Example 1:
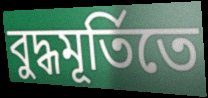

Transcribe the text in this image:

বুদ্ধমূর্তিতে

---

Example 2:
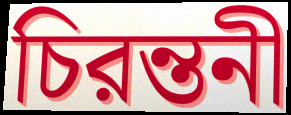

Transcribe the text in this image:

চিরন্তনী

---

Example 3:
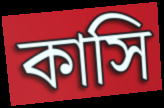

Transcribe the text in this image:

কাসি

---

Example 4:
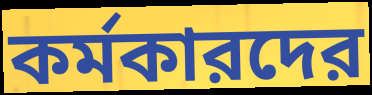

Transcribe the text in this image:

কর্মকারদের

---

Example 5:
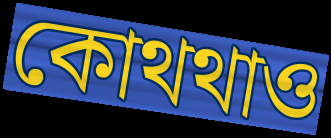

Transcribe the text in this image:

কোথথাও